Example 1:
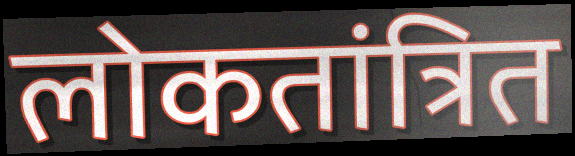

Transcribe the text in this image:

लोकतांत्रित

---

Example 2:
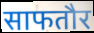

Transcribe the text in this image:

साफतौर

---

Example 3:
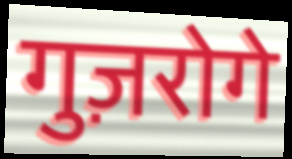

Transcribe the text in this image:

गुज़रोगे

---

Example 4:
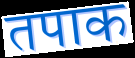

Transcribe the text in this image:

तपाक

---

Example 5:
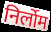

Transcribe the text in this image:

निर्लोम